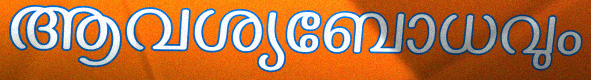
ആവശ്യബോധവും